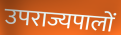
उपराज्यपालों